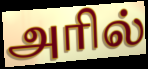
அரில்